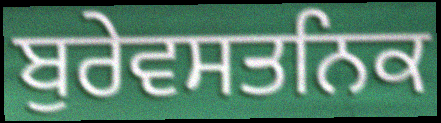
ਬੁਰੇਵਸਤਨਿਕ